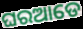
ଘରଆଡେ